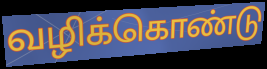
வழிக்கொண்டு